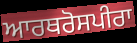
ਆਰਥਰੋਸਪੀਰਾ